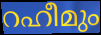
റഹീമും